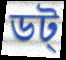
ডট্